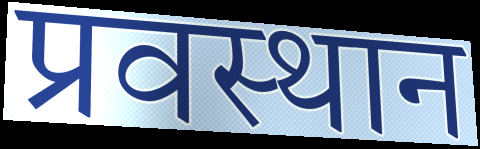
प्रवस्थान